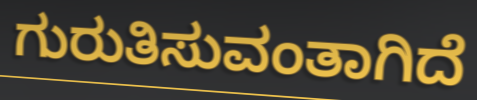
ಗುರುತಿಸುವಂತಾಗಿದೆ